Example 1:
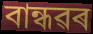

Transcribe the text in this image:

বান্ধৱৰ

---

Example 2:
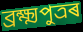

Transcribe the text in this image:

ব্ৰক্ষ্মপুত্ৰৰ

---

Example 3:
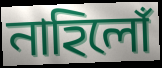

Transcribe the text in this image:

নাহিলোঁ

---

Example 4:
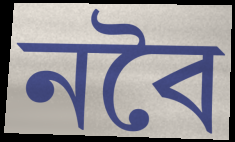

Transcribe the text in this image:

নবৈ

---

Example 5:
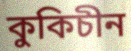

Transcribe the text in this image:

কুকিচীন